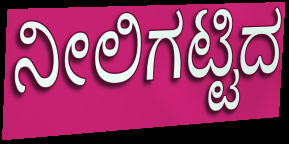
ನೀಲಿಗಟ್ಟಿದ